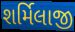
શર્મિલાજી